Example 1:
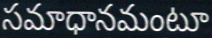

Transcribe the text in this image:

సమాధానమంటూ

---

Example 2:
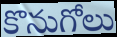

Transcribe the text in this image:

కొనుగోలు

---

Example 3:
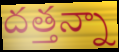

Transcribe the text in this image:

దత్తన్నా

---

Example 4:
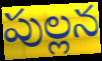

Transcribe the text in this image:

పుల్లన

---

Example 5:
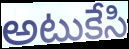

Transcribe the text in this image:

అటుకేసి